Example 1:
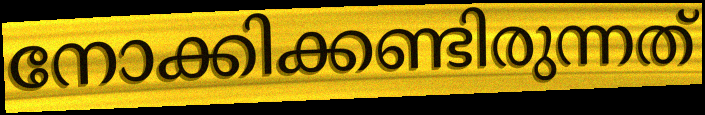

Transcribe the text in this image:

നോക്കിക്കണ്ടിരുന്നത്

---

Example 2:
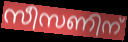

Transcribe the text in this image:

സീസണിന്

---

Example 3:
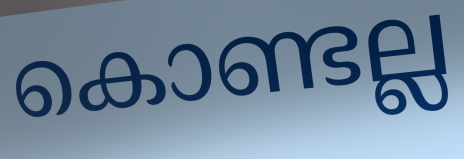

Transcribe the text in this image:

കൊണ്ടല്ല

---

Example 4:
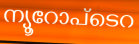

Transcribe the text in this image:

ന്യൂറോപ്ടെറ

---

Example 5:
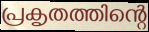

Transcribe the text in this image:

പ്രകൃതത്തിന്റെ